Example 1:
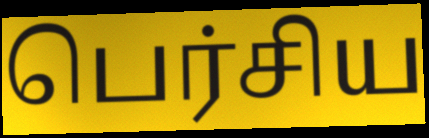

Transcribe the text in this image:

பெர்சிய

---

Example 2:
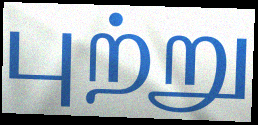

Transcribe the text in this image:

புற்று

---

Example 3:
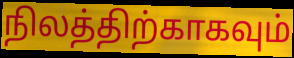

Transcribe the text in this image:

நிலத்திற்காகவும்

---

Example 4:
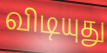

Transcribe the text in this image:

விடியுது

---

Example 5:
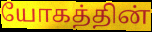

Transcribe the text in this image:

யோகத்தின்